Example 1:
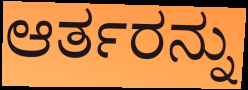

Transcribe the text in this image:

ಆರ್ತರನ್ನು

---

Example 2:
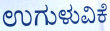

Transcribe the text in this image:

ಉಗುಳುವಿಕೆ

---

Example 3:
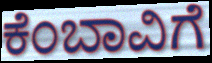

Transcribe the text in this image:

ಕೆಂಬಾವಿಗೆ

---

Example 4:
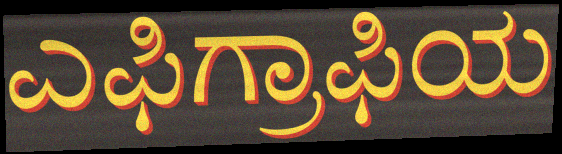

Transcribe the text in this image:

ಎಫಿಗ್ರಾಫಿಯ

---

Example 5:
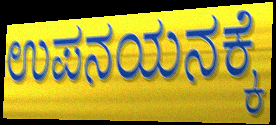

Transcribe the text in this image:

ಉಪನಯನಕ್ಕೆ